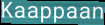
Kaappaan